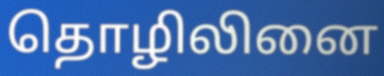
தொழிலினை